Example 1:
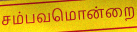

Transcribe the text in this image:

சம்பவமொன்றை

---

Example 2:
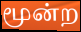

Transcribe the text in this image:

மூன்ற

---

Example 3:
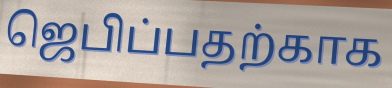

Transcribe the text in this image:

ஜெபிப்பதற்காக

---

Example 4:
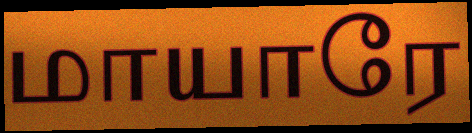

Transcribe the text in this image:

மாயாரே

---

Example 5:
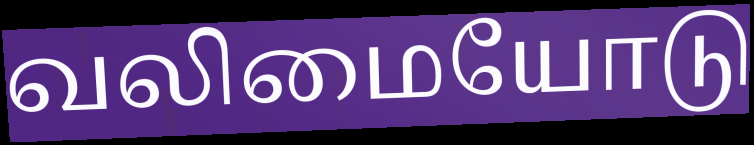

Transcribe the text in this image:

வலிமையோடு